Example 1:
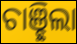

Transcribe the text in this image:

ଚାଞ୍ଛିଲା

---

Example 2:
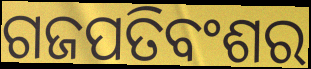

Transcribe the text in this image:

ଗଜପତିବଂଶର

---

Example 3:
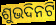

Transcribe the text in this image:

ଶୁଭଦିନଟି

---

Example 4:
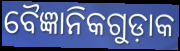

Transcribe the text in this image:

ବୈଜ୍ଞାନିକଗୁଡ଼ାକ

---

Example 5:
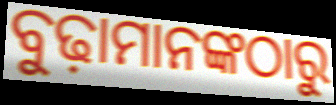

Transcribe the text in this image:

ବୁଢ଼ାମାନଙ୍କଠାରୁ